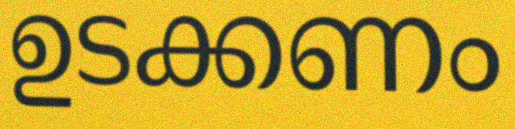
ഉടക്കണം